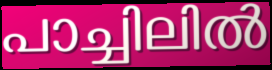
പാച്ചിലിൽ